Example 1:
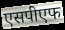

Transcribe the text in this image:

एसपीएफ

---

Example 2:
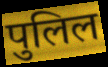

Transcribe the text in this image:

पुलिल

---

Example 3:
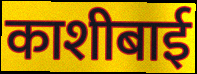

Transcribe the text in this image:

काशीबाई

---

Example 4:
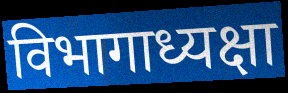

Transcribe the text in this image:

विभागाध्यक्षा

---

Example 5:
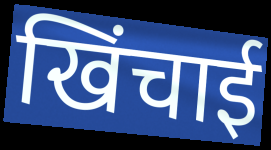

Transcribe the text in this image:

खिंचाई